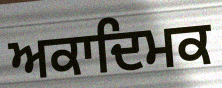
ਅਕਾਦਿਮਕ